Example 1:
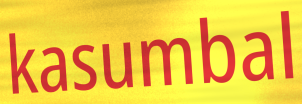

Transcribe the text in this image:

kasumbal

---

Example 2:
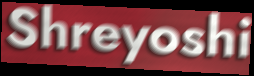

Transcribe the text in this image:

Shreyoshi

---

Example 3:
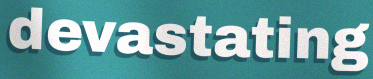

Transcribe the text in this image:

devastating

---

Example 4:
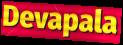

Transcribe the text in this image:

Devapala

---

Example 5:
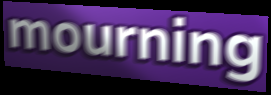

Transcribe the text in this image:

mourning